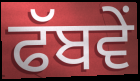
ਫੱਬਵੇਂ